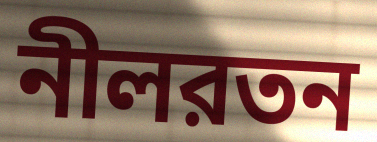
নীলরতন